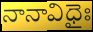
నానావిధైః